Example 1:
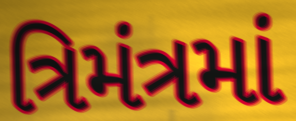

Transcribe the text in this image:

ત્રિમંત્રમાં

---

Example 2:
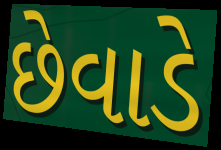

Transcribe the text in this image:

છેવાડે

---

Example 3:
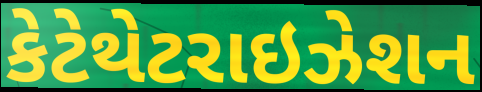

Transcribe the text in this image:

કેટેથેટરાઇઝેશન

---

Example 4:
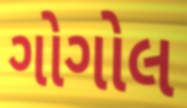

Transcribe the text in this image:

ગોગોલ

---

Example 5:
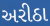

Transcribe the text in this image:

અરીઠા